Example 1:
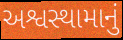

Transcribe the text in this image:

અશ્વસ્થામાનું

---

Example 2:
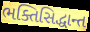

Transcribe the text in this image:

ભક્તિસિદ્ધાન્ત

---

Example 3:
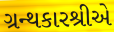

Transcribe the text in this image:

ગ્રન્થકારશ્રીએ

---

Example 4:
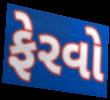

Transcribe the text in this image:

ફેરવો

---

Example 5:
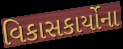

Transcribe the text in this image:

વિકાસકાર્યોના